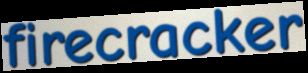
firecracker